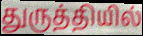
துருத்தியில்